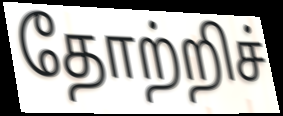
தோற்றிச்